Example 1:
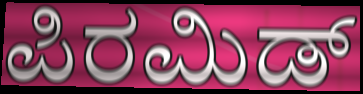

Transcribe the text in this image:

ಪಿರಮಿಡ್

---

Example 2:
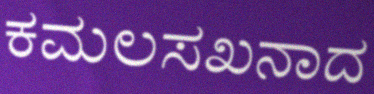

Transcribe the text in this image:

ಕಮಲಸಖನಾದ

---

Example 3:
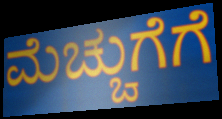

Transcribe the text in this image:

ಮೆಚ್ಚುಗೆಗೆ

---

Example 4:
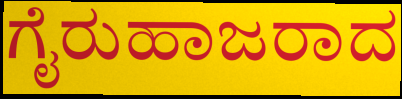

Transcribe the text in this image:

ಗೈರುಹಾಜರಾದ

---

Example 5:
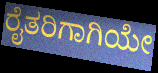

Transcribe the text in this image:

ರೈತರಿಗಾಗಿಯೇ